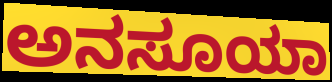
ಅನಸೂಯಾ